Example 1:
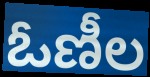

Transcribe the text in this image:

ఓణీల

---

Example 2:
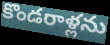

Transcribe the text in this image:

కొండరాళ్లను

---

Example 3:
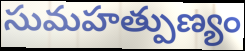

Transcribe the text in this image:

సుమహత్పుణ్యం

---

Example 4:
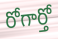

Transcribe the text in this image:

రోగార్తో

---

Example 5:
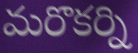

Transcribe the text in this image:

మరొకర్ని